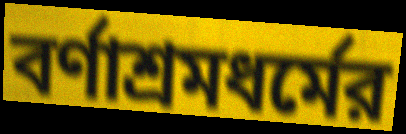
বর্ণাশ্রমধর্মের